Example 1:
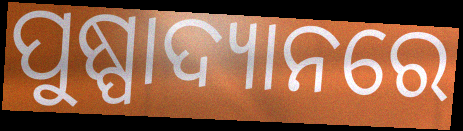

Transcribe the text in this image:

ପୁଷ୍ପାଦ୍ୟାନରେ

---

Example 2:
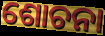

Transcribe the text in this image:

ଶୋଚନା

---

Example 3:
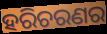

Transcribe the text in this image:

ହରିଚରଣର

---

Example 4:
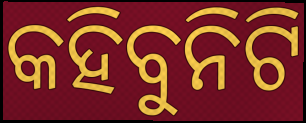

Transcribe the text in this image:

କହିବୁନିଟି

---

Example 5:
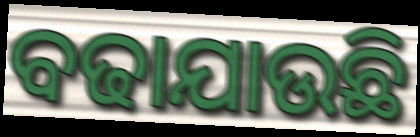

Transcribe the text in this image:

ବଢାଯାଉଛି